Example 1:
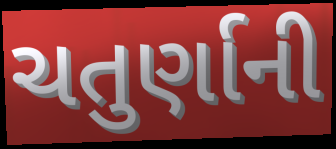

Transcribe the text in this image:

ચતુર્ણાની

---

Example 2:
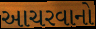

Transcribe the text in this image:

આચરવાનો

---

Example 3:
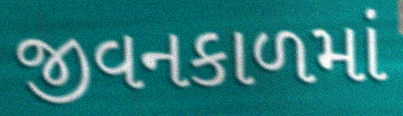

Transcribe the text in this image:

જીવનકાળમાં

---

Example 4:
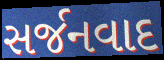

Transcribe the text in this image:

સર્જનવાદ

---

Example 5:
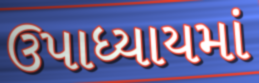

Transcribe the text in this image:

ઉપાધ્યાયમાં